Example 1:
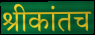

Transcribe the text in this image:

श्रीकांतच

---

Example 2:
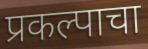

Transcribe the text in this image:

प्रकल्पाचा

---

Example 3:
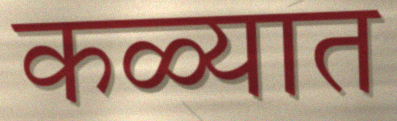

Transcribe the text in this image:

कळ्यात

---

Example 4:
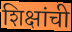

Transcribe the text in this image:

शिक्षांची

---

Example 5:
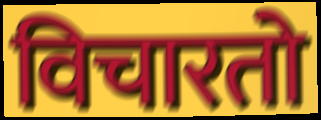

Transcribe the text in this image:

विचारतो